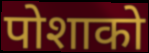
पोशाको